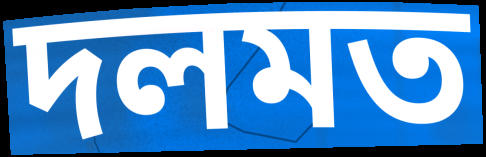
দলমত